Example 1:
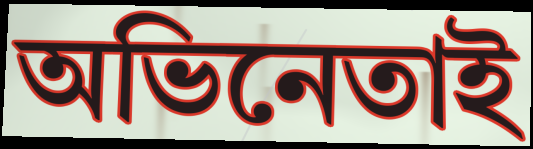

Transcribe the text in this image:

অভিনেতাই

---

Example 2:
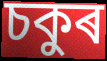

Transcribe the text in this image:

চকুৰ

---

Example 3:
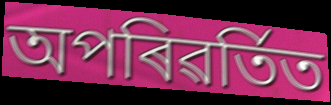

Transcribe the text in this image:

অপৰিৱৰ্তিত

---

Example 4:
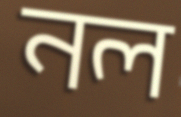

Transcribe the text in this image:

নল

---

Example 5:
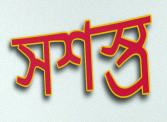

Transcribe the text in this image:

সশস্ত্ৰ